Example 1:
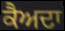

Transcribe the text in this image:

ਕੈਅਦਾ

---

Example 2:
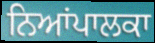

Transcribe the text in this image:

ਨਿਆਂਪਾਲਕਾ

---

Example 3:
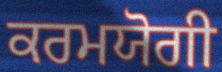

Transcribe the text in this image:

ਕਰਮਯੋਗੀ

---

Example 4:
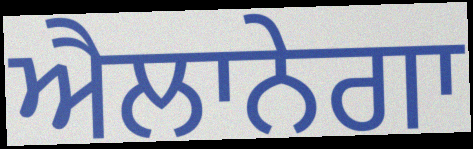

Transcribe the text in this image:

ਐਲਾਨੇਗਾ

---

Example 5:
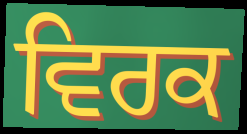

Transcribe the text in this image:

ਵਿਰਕ